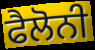
ਫੈਲੋਨੀ